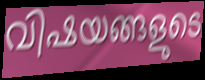
വിഷയങ്ങളുടെ